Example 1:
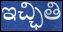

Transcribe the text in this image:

ఇచ్ఛితి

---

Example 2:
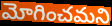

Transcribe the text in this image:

మోగించమని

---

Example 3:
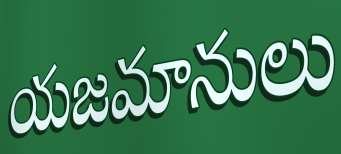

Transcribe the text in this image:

యజమానులు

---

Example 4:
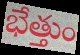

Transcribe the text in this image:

భేత్తుం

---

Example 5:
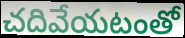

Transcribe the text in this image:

చదివేయటంతో